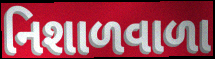
નિશાળવાળા